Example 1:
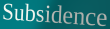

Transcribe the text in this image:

Subsidence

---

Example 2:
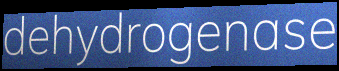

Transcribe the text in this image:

dehydrogenase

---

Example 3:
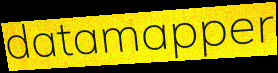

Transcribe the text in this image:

datamapper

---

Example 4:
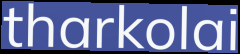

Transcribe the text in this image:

tharkolai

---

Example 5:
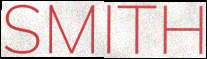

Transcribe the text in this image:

SMITH